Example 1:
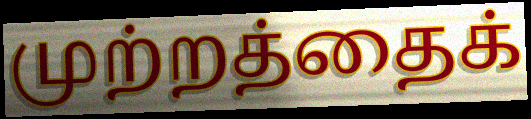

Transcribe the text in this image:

முற்றத்தைக்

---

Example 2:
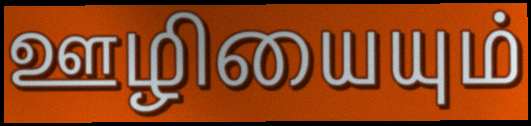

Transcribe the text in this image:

ஊழியையும்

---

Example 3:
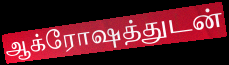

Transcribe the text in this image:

ஆக்ரோஷத்துடன்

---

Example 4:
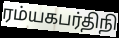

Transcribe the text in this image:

ரம்யகபர்திநி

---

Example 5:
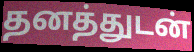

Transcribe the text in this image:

தனத்துடன்